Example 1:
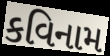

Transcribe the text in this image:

કવિનામ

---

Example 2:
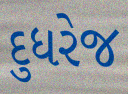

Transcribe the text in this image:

દુધરેજ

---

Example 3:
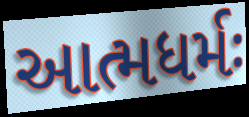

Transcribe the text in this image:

આત્મધર્મઃ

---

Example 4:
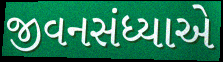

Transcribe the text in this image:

જીવનસંધ્યાએ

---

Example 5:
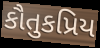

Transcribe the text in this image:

કૌતુકપ્રિય